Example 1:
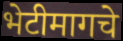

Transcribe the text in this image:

भेटीमागचे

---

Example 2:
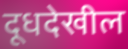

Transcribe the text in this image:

दूधदेखील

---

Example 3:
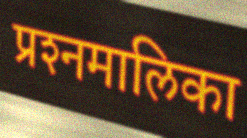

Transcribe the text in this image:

प्रश्नमालिका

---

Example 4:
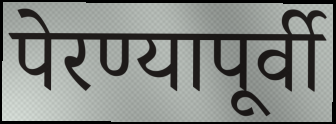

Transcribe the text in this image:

पेरण्यापूर्वी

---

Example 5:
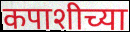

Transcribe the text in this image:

कपाशीच्या